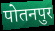
पोतनपुर